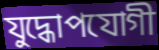
যুদ্ধোপযোগী